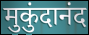
मुकुंदानंद